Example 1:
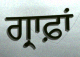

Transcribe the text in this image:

ਗ੍ਰਾਫ਼ਾਂ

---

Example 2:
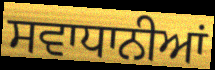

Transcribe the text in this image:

ਸਵਾਧਾਨੀਆਂ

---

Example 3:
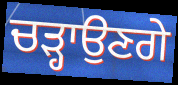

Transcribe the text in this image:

ਚੜ੍ਹਾਉਣਗੇ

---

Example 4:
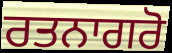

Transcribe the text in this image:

ਰਤਨਾਗਰੋ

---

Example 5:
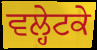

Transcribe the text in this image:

ਵਲ੍ਹੇਟਕੇ